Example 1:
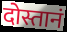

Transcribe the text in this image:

दोस्तानं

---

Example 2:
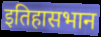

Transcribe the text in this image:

इतिहासभान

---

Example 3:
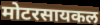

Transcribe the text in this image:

मोटरसायकल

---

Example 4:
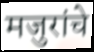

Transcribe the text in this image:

मजुरांचे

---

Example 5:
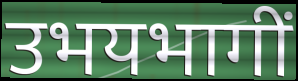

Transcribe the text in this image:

उभयभागीं